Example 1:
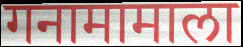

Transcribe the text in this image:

गनामामाला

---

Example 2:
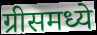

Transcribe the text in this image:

ग्रीसमध्ये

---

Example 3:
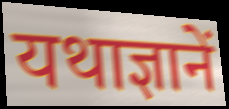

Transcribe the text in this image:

यथाज्ञानें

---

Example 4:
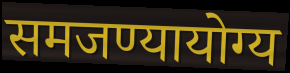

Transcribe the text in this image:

समजण्यायोग्य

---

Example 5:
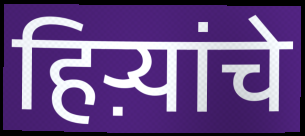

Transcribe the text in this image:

हिऱ्‍यांचे